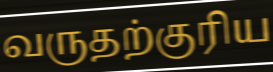
வருதற்குரிய